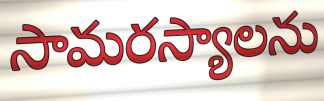
సామరస్యాలను